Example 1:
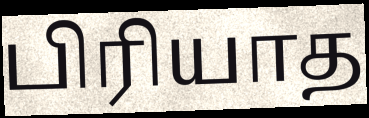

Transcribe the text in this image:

பிரியாத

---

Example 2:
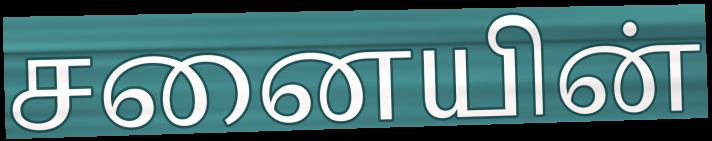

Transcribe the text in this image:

சனையின்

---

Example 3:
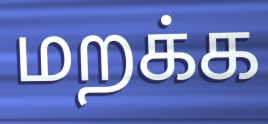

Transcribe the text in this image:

மறக்க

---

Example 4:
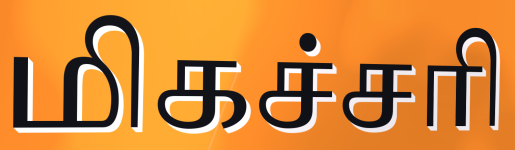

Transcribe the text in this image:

மிகச்சரி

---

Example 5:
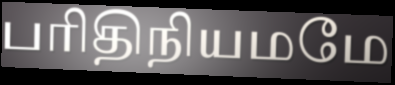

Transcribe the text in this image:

பரிதிநியமமே